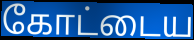
கோட்டைய